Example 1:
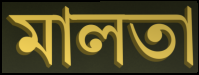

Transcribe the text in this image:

মালতা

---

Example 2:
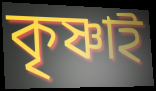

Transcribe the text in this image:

কৃষ্ণাই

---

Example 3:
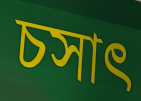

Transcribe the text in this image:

চসাৎ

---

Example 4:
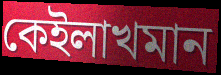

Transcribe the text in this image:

কেইলাখমান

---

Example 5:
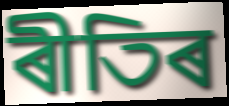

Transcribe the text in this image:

ৰীতিৰ